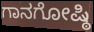
ಗಾನಗೋಷ್ಠಿ